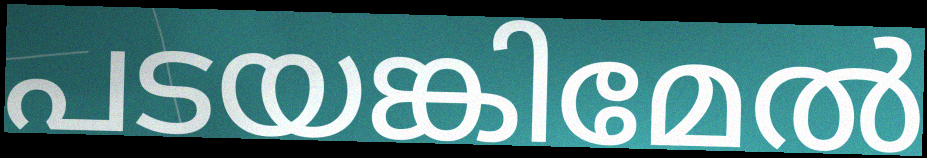
പടയങ്കിമേൽ